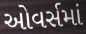
ઓવર્સમાં